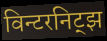
विन्टरनिट्झ